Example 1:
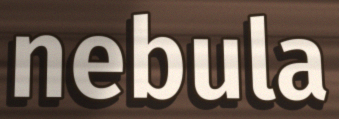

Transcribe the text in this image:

nebula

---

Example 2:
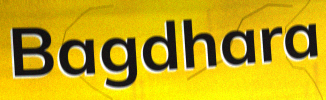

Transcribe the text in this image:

Bagdhara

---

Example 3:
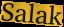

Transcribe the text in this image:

Salak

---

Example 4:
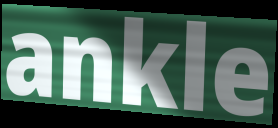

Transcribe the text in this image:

ankle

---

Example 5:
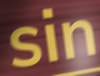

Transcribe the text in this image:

sin